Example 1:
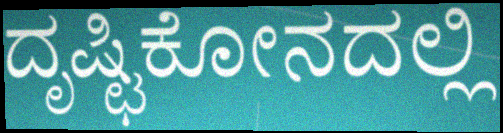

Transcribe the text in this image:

ದೃಷ್ಟಿಕೋನದಲ್ಲಿ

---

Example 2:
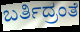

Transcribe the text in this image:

ಬರ್ತಿದ್ರಂತೆ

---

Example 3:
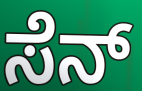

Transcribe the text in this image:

ಸೆನ್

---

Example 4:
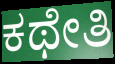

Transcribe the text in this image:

ಕಥೇತಿ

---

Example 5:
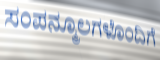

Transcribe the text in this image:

ಸಂಪನ್ಮೂಲಗಳೊಂದಿಗೆ